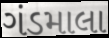
ગંડમાલા